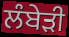
ਲੰਬੇੜੀ